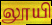
லூயி